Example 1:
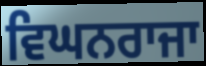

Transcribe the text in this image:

ਵਿਘਨਰਾਜਾ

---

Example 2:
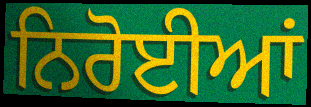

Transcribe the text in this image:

ਨਿਰੋਈਆਂ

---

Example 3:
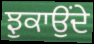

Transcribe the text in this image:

ਝੁਕਾਉੰਦੇ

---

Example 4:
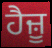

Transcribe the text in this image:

ਹੈਜ਼ੂ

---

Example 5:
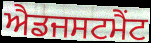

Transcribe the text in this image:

ਐਡਜਸਟਮੈਂਟ